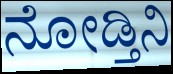
ನೋಡ್ತಿನಿ